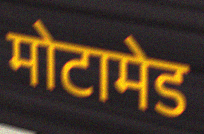
मोटामेड